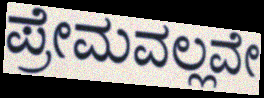
ಪ್ರೇಮವಲ್ಲವೇ